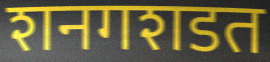
शनगशडत